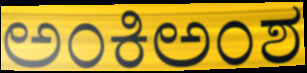
ಅಂಕಿಅಂಶ